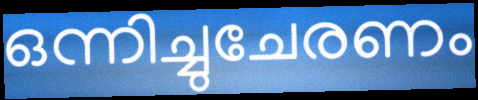
ഒന്നിച്ചുചേരണം